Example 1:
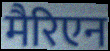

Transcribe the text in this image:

मैरिएन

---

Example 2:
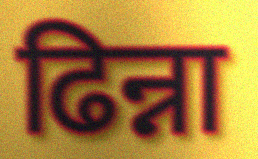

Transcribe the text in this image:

ढिन्ना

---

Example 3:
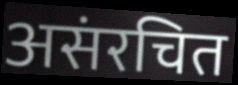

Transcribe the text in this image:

असंरचित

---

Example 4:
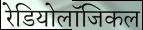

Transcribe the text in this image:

रेडियोलॉजिकल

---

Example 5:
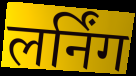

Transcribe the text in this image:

लर्निंग